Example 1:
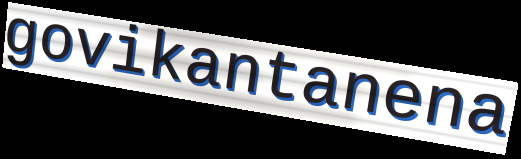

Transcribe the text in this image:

govikantanena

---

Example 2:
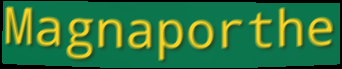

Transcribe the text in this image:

Magnaporthe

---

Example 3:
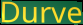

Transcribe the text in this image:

Durve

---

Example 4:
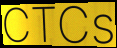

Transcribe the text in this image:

CTCs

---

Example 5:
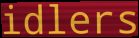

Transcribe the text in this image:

idlers